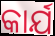
କାର୍ଯ